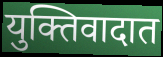
युक्तिवादात